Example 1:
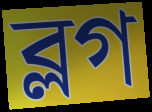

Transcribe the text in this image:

ব্লগ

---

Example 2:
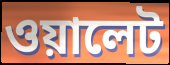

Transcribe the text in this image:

ওয়ালেট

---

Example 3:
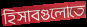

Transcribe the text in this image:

হিসাবগুলোতে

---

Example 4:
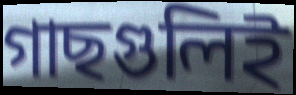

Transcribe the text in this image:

গাছগুলিই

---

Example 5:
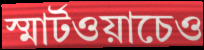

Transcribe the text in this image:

স্মার্টওয়াচেও